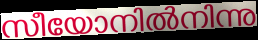
സീയോനിൽനിന്നു